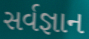
સર્વજ્ઞાન